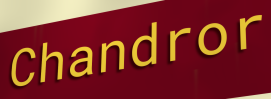
Chandror